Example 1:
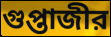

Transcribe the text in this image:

গুপ্তাজীর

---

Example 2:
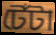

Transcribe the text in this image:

টেঁটা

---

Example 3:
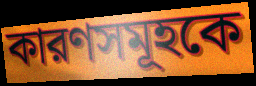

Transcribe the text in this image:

কারণসমূহকে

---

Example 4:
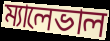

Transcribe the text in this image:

ম্যালেভাল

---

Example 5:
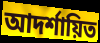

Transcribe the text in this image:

আদর্শায়িত